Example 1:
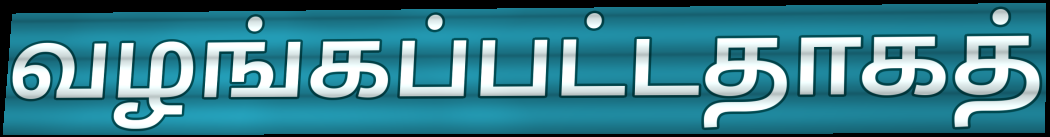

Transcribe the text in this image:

வழங்கப்பட்டதாகத்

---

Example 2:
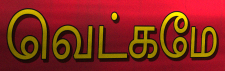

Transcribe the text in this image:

வெட்கமே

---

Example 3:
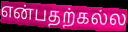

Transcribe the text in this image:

என்பதற்கல்ல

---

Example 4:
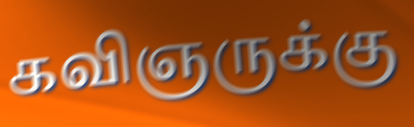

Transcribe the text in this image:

கவிஞருக்கு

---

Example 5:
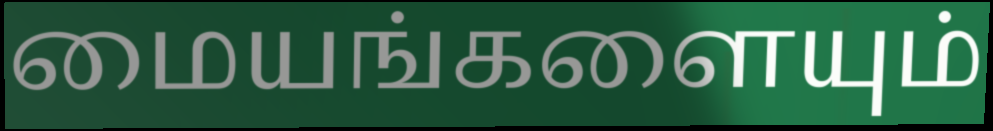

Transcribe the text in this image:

மையங்களையும்